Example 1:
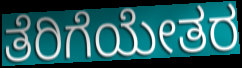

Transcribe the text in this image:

ತೆರಿಗೆಯೇತರ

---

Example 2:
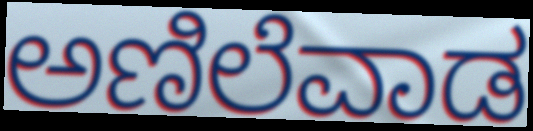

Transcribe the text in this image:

ಅಣಿಲೆವಾಡ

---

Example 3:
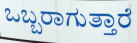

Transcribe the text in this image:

ಒಬ್ಬರಾಗುತ್ತಾರೆ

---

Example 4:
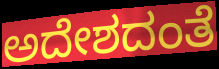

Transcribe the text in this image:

ಅದೇಶದಂತೆ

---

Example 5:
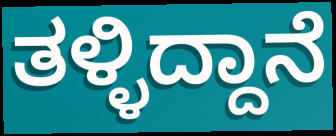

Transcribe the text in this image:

ತಳ್ಳಿದ್ದಾನೆ